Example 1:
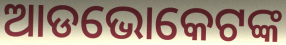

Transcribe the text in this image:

ଆଡଭୋକେଟଙ୍କ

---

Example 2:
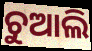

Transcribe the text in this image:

ଚୁଆଲି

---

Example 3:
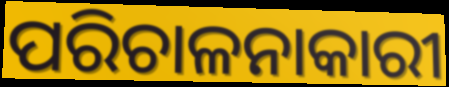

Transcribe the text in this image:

ପରିଚାଳନାକାରୀ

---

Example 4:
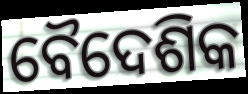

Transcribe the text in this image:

ବୈଦେଶିକ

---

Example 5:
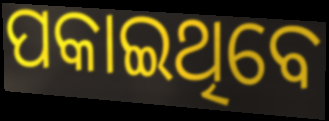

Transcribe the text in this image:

ପକାଇଥିବେ